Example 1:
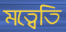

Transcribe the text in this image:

মত্বেতি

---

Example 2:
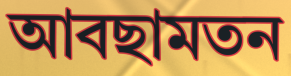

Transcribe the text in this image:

আবছামতন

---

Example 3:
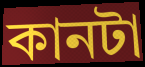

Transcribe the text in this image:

কানটা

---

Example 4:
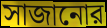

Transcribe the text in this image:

সাজানোর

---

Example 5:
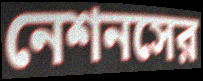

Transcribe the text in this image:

নেশনসের